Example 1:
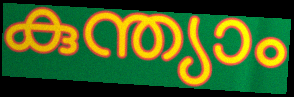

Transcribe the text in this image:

കുന്ത്യാം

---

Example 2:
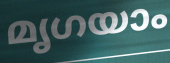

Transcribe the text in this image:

മൃഗയാം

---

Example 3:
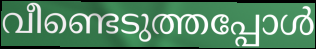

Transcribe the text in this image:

വീണ്ടെടുത്തപ്പോൾ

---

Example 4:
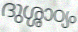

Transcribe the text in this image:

ദുശ്ശാഠ്യം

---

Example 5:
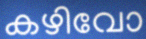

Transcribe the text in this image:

കഴിവോ